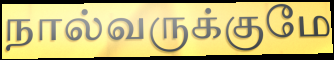
நால்வருக்குமே